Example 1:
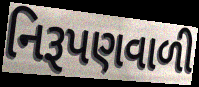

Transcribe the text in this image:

નિરૂપણવાળી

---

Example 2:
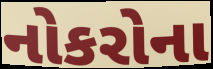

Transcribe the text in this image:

નોકરોના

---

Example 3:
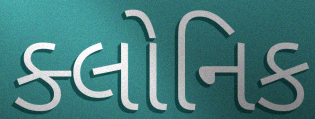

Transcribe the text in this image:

ક્લોનિક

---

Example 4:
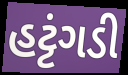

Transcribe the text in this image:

હટ્ટંગડી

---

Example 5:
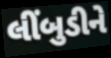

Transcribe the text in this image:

લીંબુડીને